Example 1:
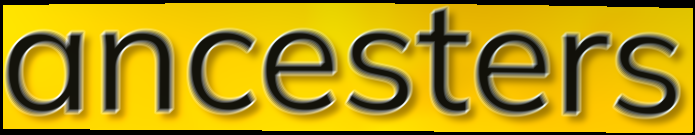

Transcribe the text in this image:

ancesters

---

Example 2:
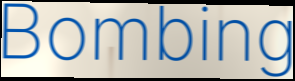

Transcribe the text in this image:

Bombing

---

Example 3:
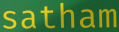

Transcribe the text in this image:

satham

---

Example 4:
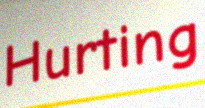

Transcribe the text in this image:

Hurting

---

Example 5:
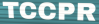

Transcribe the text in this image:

TCCPR